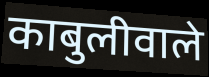
काबुलीवाले